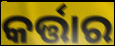
କର୍ତ୍ତାର